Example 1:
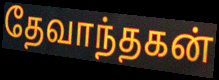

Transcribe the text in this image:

தேவாந்தகன்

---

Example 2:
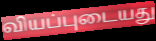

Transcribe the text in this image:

வியப்புடையது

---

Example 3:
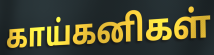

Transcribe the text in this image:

காய்கனிகள்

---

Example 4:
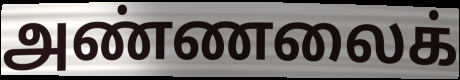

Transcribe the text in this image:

அண்ணலைக்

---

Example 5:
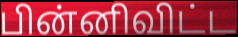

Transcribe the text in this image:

பின்னிவிட்ட